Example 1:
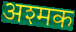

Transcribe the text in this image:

अश्मक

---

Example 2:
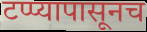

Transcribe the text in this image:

टप्प्यापासूनच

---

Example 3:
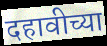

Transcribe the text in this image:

दहावीच्या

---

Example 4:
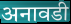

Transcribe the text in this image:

अनावडी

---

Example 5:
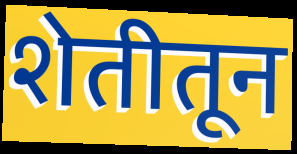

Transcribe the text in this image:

शेतीतून